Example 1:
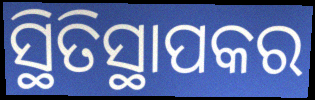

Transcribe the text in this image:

ସ୍ଥିତିସ୍ଥାପକର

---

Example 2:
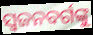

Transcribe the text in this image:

ସ୍ୱଜନବର୍ଗଙ୍କୁ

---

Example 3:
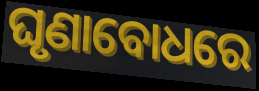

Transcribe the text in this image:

ଘୃଣାବୋଧରେ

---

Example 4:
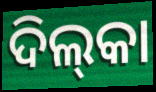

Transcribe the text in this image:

ଦିଲ୍‌କା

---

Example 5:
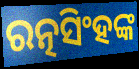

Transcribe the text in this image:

ରତ୍ନସିଂହଙ୍କ